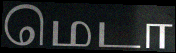
மெடா